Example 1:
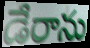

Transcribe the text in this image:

డేరాను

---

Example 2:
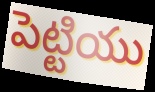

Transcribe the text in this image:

పెట్టియు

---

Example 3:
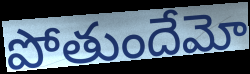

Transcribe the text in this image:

పోతుందేమో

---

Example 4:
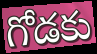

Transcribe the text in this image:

గోడకు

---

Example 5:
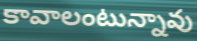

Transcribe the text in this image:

కావాలంటున్నావు